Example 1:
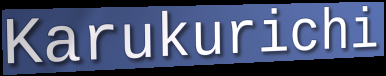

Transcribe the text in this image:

Karukurichi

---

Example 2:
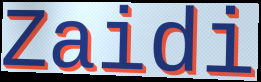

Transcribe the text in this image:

Zaidi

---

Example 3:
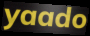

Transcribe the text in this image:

yaado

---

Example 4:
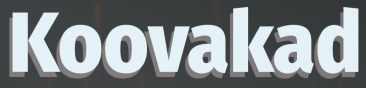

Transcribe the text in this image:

Koovakad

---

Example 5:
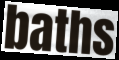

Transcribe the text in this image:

baths